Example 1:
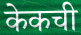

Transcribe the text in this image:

केकची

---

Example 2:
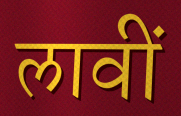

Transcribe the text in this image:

लावीं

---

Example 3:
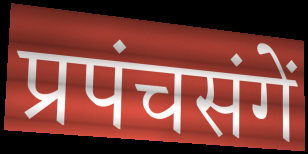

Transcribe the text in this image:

प्रपंचसंगें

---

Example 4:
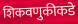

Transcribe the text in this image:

शिकवणुकीकडे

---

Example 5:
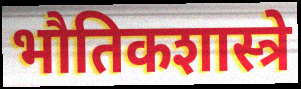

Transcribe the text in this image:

भौतिकशास्त्रे